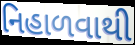
નિહાળવાથી